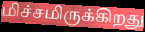
மிச்சமிருக்கிறது